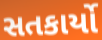
સતકાર્યો